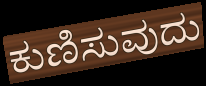
ಕುಣಿಸುವುದು